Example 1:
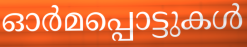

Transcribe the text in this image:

ഓർമപ്പൊട്ടുകൾ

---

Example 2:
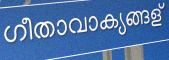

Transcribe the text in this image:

ഗീതാവാക്യങ്ങള്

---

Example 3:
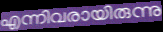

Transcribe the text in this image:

എന്നിവരായിരുന്നു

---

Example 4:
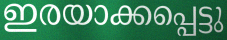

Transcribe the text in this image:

ഇരയാക്കപ്പെട്ടു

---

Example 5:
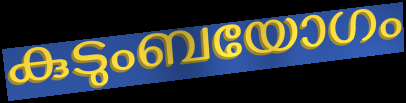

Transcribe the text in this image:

കുടുംബയോഗം